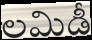
లమిడీ